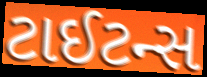
ટાઈટન્સ